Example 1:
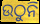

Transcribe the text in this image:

ଉଠୁନି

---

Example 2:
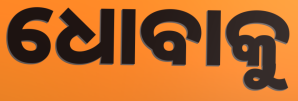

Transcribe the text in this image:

ଧୋବାକୁ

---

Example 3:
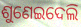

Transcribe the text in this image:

ଶୁଣେଇଦେଲି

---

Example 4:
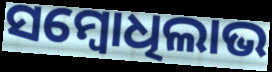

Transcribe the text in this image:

ସମ୍ବୋଧିଲାଭ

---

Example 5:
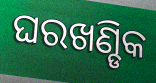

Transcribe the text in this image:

ଘରଖଣ୍ଡିକ